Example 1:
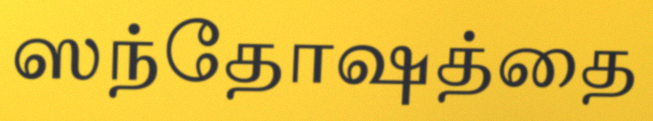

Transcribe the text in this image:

ஸந்தோஷத்தை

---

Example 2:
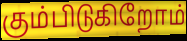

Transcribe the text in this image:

கும்பிடுகிறோம்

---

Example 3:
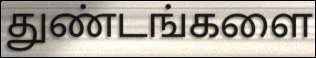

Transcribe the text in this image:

துண்டங்களை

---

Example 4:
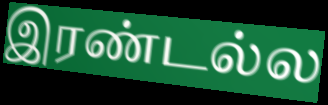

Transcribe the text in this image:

இரண்டல்ல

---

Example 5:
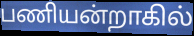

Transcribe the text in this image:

பணியன்றாகில்